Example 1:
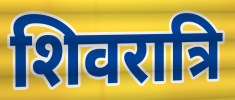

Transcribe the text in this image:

शिवरात्रि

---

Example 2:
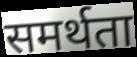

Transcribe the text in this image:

समर्थता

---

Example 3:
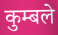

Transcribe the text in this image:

कुम्बले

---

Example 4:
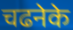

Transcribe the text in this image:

चढनेके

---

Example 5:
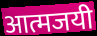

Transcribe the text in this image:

आत्मजयी